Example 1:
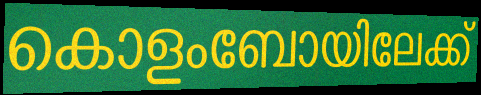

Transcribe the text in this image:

കൊളംബോയിലേക്ക്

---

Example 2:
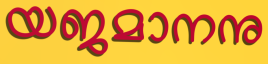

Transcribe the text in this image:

യജമാനനു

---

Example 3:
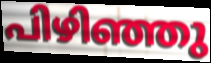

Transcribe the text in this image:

പിഴിഞ്ഞു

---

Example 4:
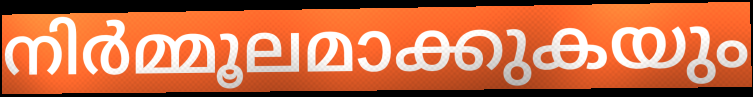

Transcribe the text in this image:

നിർമ്മൂലമാക്കുകയും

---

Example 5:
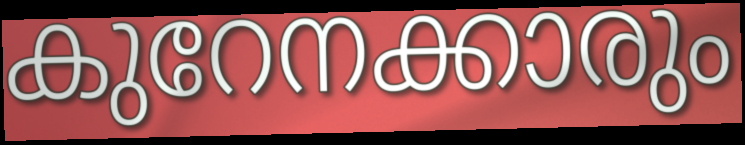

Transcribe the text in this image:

കുറേനക്കാരും